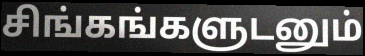
சிங்கங்களுடனும்